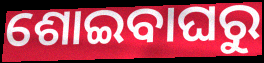
ଶୋଇବାଘରୁ